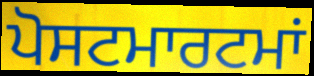
ਪੋਸਟਮਾਰਟਮਾਂ